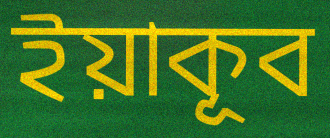
ইয়াকূব